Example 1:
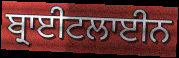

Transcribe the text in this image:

ਬ੍ਰਾਈਟਲਾਈਨ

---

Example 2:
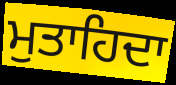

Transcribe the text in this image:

ਮੁਤਾਹਿਦਾ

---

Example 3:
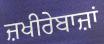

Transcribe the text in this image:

ਜ਼ਖੀਰੇਬਾਜ਼ਾਂ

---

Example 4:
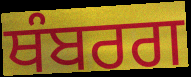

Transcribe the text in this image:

ਥੰਬਰਗ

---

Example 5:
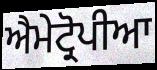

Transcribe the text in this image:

ਐਮੇਟ੍ਰੋਪੀਆ